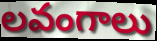
లవంగాలు